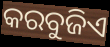
କରବୁଜିଏ